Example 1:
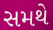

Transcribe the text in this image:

સમથે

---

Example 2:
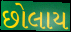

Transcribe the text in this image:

છોલાય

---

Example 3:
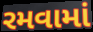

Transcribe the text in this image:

રમવામાં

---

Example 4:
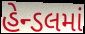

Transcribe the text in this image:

હેન્ડલમાં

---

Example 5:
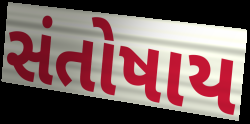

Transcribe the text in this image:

સંતોષાય